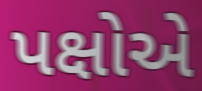
પક્ષોએ